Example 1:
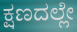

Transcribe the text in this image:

ಕ್ಷಣದಲ್ಲೇ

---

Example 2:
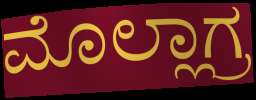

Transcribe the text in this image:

ಮೊಲ್ಲಾಗ್ರ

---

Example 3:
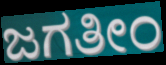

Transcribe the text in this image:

ಜಗತೀಂ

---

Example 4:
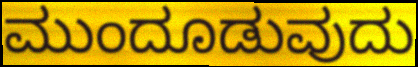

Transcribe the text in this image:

ಮುಂದೂಡುವುದು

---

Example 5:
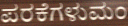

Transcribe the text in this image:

ಪರಕೆಗಳುಮಂ